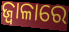
ଜ୍ୱାଳାରେ